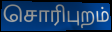
சொரிபுறம்